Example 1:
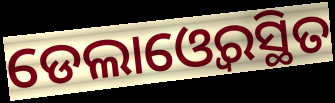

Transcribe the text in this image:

ଡେଲାଓ୍ବେରସ୍ଥିତ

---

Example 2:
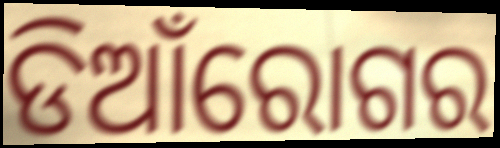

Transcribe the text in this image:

ଡିଆଁରୋଗର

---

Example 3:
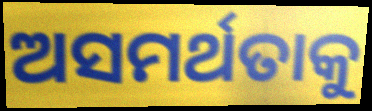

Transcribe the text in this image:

ଅସମର୍ଥତାକୁ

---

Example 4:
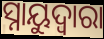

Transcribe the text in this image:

ସ୍ନାୟୁଦ୍ଵାରା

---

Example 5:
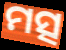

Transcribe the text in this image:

ମତ୍ସ